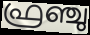
ഫ്രഞ്ചു